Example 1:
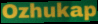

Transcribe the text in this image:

Ozhukap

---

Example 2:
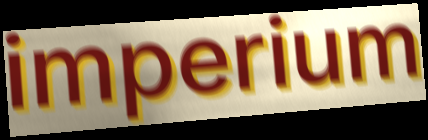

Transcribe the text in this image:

imperium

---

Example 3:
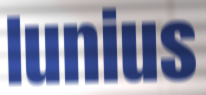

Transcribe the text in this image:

Iunius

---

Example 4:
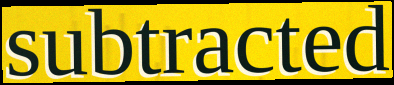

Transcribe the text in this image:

subtracted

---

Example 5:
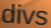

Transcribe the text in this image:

divs